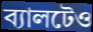
ব্যালটেও